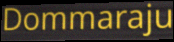
Dommaraju